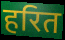
हरित